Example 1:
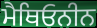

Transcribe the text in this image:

ਮੈਥਿਓਨੀਨ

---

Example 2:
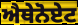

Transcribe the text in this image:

ਐਥੇਨੋਏਟ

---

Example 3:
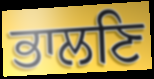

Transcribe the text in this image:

ਭਾਲਣਿ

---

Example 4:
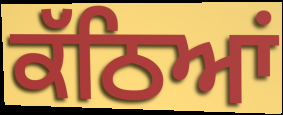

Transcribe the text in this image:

ਕੱਠਿਆਂ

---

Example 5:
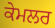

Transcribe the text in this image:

ਕੇਮਲਰ